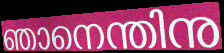
ഞാനെന്തിനു